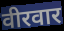
वीरवार